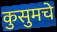
कुसुमचे